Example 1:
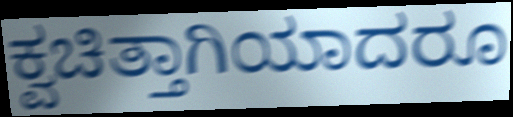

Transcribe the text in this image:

ಕ್ವಚಿತ್ತಾಗಿಯಾದರೂ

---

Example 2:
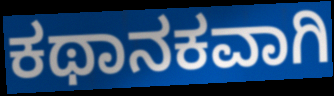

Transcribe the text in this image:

ಕಥಾನಕವಾಗಿ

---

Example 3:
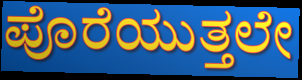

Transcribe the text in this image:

ಪೊರೆಯುತ್ತಲೇ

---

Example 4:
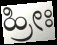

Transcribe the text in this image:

ಹ್ರೀಃ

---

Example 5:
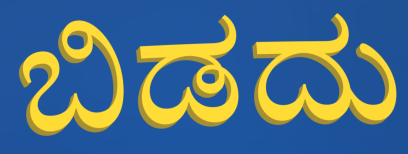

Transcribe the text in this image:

ಬಿಡದು